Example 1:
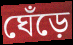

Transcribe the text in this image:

ঘেঁড়ে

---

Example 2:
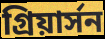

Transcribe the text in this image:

গ্রিয়ার্সন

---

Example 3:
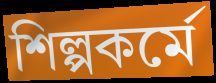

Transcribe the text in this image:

শিল্পকর্মে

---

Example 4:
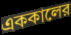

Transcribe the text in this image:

এককালের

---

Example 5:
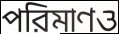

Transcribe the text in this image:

পরিমাণও